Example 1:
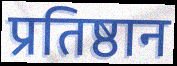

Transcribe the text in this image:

प्रतिष्ठान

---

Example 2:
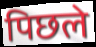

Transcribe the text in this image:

पिछले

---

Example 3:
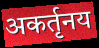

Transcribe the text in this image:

अकर्तृनय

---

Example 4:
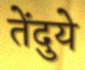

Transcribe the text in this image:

तेंदुये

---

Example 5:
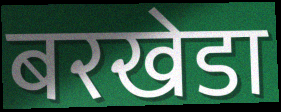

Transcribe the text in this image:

बरखेडा